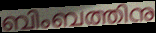
ബിംബത്തിനു